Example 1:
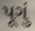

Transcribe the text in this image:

પૂગું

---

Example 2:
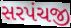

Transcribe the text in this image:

સરપંચજી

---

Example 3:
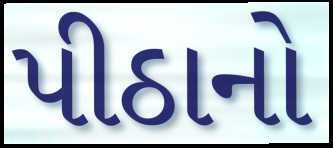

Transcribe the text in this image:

પીઠાનો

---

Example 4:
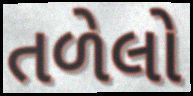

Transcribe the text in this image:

તળેલો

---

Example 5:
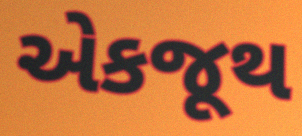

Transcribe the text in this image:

એકજૂથ